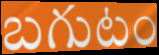
బగుటం